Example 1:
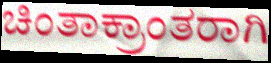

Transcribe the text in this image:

ಚಿಂತಾಕ್ರಾಂತರಾಗಿ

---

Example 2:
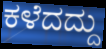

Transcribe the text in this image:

ಕಳೆದದ್ದು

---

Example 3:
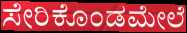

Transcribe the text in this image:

ಸೇರಿಕೊಂಡಮೇಲೆ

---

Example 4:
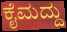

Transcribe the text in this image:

ಕೈಮದ್ದು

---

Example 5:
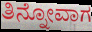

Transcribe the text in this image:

ತಿನ್ನೋವಾಗ